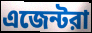
এজেন্টরা